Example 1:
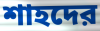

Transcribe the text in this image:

শাহদের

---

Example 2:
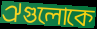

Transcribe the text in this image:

ঐগুলোকে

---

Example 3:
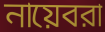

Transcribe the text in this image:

নায়েবরা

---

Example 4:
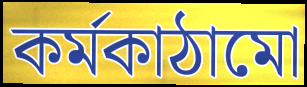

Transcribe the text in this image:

কর্মকাঠামো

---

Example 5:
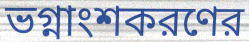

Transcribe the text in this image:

ভগ্নাংশকরণের